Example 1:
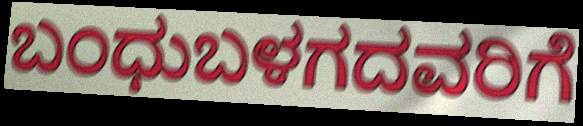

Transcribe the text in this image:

ಬಂಧುಬಳಗದವರಿಗೆ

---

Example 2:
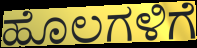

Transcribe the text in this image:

ಹೊಲಗಳಿಗೆ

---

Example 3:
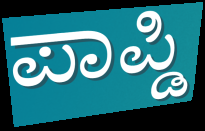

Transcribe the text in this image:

ಪಾಪ್ಡಿ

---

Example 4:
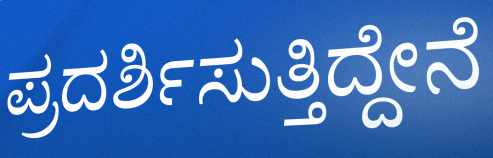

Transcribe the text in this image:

ಪ್ರದರ್ಶಿಸುತ್ತಿದ್ದೇನೆ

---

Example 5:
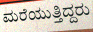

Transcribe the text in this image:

ಮರೆಯುತ್ತಿದ್ದರು